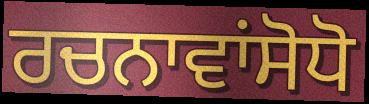
ਰਚਨਾਵਾਂਸੋਧੋ